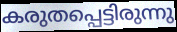
കരുതപ്പെട്ടിരുന്നു